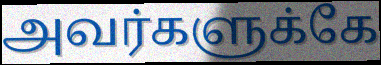
அவர்களுக்கே